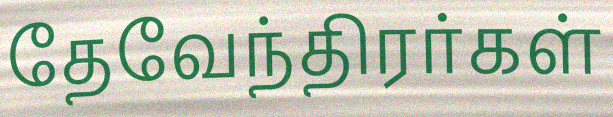
தேவேந்திரர்கள்